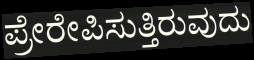
ಪ್ರೇರೇಪಿಸುತ್ತಿರುವುದು